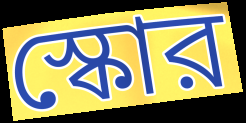
স্কোর